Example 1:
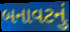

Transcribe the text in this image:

બનાવટનું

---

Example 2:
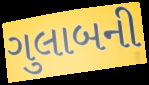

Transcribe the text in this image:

ગુલાબની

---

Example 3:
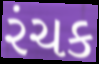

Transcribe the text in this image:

રંચક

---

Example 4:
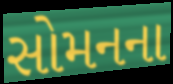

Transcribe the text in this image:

સોમનના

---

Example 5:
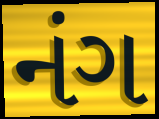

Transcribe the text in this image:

નંગ